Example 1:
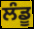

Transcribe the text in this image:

ਲੰਡੂ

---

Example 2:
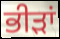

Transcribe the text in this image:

ਭੀੜਾਂ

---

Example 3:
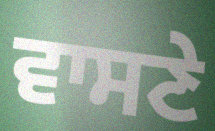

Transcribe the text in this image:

ਵਾਸਣੇ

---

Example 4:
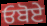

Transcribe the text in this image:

ਓਬੋਏ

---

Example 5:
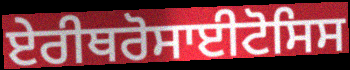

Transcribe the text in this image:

ਏਰੀਥਰੋਸਾਈਟੋਸਿਸ